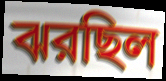
ঝরছিল